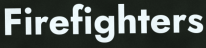
Firefighters